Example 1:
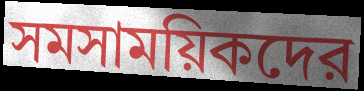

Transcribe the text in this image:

সমসাময়িকদের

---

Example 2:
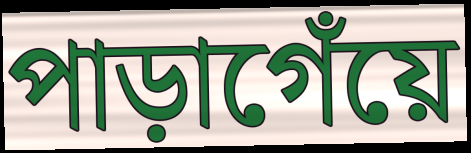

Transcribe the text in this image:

পাড়াগেঁয়ে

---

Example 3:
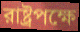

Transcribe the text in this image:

রাষ্ট্রপক্ষে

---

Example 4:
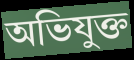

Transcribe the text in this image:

অভিযুক্ত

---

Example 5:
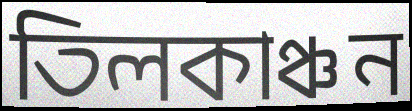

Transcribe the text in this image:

তিলকাঞ্চন